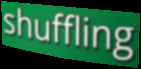
shuffling